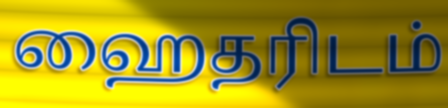
ஹைதரிடம்